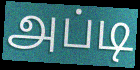
அப்டி